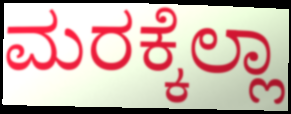
ಮರಕ್ಕೆಲ್ಲಾ